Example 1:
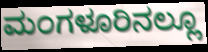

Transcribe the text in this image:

ಮಂಗಳೂರಿನಲ್ಲೂ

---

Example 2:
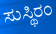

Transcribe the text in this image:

ಸುಸ್ಥಿರಂ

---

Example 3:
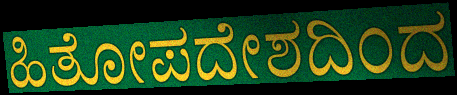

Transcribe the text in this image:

ಹಿತೋಪದೇಶದಿಂದ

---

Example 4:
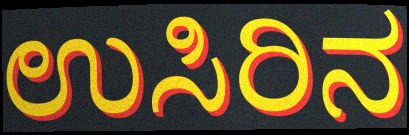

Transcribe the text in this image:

ಉಸಿರಿನ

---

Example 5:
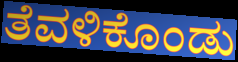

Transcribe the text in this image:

ತೆವಳಿಕೊಂಡು